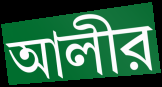
আলীর